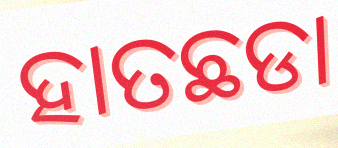
ହାତଛଡା